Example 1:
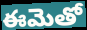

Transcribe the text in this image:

ఈమెతో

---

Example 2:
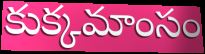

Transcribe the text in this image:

కుక్కమాంసం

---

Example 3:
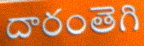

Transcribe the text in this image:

దారంతెగి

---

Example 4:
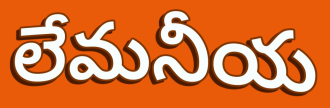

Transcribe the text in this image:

లేమనీయ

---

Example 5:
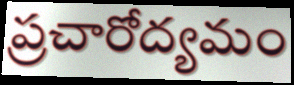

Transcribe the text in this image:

ప్రచారోద్యమం